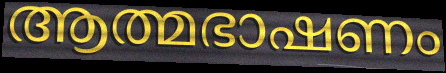
ആത്മഭാഷണം